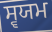
ਸ੍ਵਯਮ